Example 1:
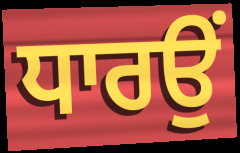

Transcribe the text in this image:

ਧਾਰਉਂ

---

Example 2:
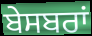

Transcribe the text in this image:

ਬੇਸਬਰਾਂ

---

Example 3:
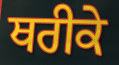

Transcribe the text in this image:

ਥਰੀਕੇ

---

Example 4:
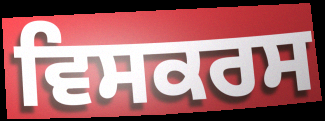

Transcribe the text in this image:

ਵਿਸਕਰਸ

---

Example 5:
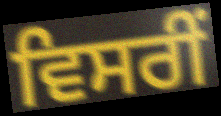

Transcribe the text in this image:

ਵਿਸਰੀਂ